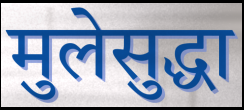
मुलेसुद्धा